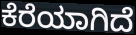
ಕೆರೆಯಾಗಿದೆ